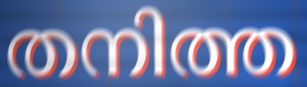
തനിത്ത